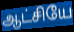
ஆட்சியே